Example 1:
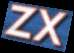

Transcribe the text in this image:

zx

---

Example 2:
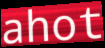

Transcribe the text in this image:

ahot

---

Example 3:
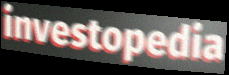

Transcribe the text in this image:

investopedia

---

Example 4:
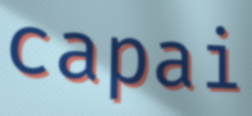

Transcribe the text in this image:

capai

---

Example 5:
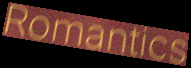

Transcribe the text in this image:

Romantics